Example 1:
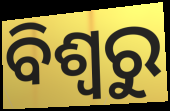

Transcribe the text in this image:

ବିଶ୍ଵରୁ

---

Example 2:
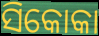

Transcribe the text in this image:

ସିକୋକା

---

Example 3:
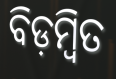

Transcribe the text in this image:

ବିଡ଼ମ୍ଵିତ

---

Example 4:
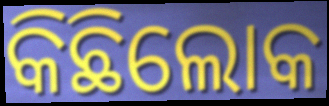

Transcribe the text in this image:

କିଛିଲୋକ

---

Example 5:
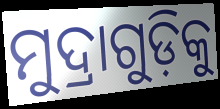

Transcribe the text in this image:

ମୁଦ୍ରାଗୁଡ଼ିକୁ